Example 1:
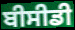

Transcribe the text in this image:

ਬੀਸੀਡੀ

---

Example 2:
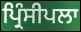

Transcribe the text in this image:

ਪ੍ਰਿੰਸੀਪਲਾ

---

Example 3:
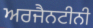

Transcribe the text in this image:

ਅਰਜੈਨਟੀਨੀ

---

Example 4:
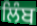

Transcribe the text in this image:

ਲਿੰਬ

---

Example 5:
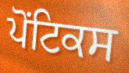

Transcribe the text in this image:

ਪੋਂਟਿਕਸ